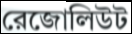
রেজোলিউট